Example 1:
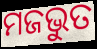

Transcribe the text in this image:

ମଜଭୁତ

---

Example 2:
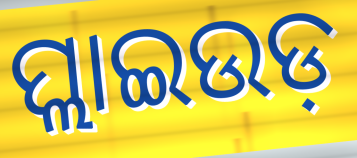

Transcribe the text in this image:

ପ୍ଲାଇଉଡ଼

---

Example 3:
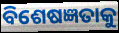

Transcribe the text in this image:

ବିଶେଷଜ୍ଞତାକୁ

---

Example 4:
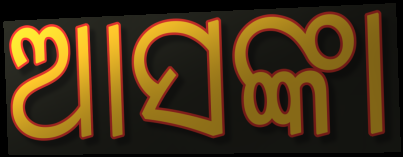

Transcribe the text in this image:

ଆସଙ୍କା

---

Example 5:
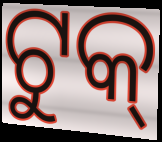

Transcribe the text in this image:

ଟୁକ୍